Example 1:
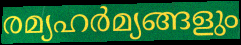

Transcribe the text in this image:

രമ്യഹർമ്യങ്ങളും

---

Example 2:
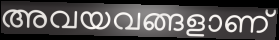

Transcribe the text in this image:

അവയവങ്ങളാണ്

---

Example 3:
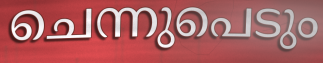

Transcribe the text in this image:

ചെന്നുപെടും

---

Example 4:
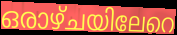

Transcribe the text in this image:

ഒരാഴ്ചയിലേറെ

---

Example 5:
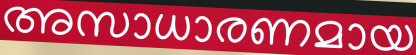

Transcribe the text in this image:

അസാധാരണമായ